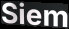
Siem